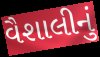
વૈશાલીનું